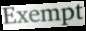
Exempt